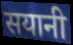
सयानी